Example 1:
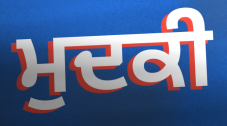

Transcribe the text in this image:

ਮੁਦਕੀ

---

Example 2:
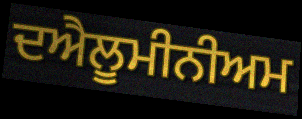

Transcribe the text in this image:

ਦਐਲੂਮੀਨੀਅਮ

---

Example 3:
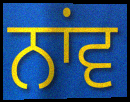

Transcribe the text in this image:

ਨਾਂਵ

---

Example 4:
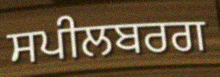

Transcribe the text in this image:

ਸਪੀਲਬਰਗ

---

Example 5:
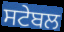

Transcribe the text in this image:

ਸਟੇਬਲ